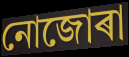
নোজোৰা